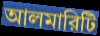
আলমারিটি